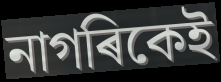
নাগৰিকেই